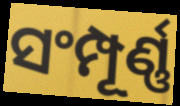
ସଂମ୍ପୂର୍ଣ୍ଣ